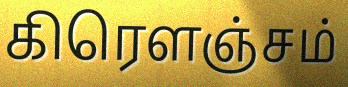
கிரௌஞ்சம்